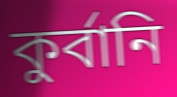
কুর্বানি